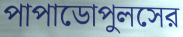
পাপাডোপুলসের